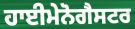
ਹਾਈਮੇਨੋਗੈਸਟਰ